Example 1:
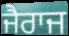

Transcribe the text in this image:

ਜੈਰਾਜ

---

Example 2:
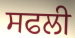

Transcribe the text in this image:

ਸਫਲੀ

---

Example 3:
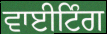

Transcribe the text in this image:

ਵਾਈਟਿੰਗ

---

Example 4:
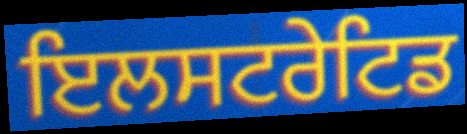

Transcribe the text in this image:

ਇਲਸਟਰੇਟਿਡ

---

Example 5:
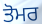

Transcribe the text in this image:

ਤੋਮਰ